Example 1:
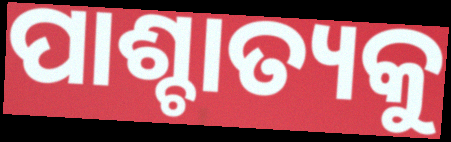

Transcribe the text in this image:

ପାଶ୍ଚାତ୍ୟକୁ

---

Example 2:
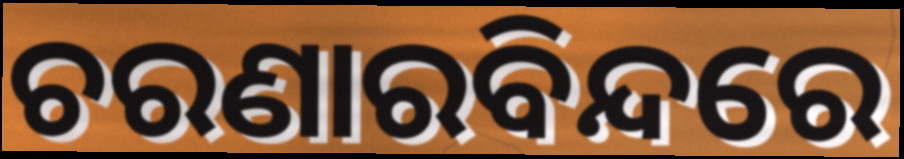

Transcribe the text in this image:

ଚରଣାରବିନ୍ଦରେ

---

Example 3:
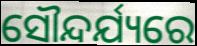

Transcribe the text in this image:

ସୌନ୍ଦର୍ଯ୍ୟରେ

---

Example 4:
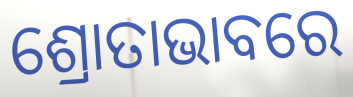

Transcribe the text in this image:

ଶ୍ରୋତାଭାବରେ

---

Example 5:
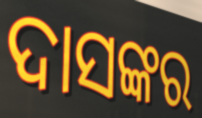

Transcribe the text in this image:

ଦାସଙ୍କର